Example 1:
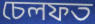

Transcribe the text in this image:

চেলফত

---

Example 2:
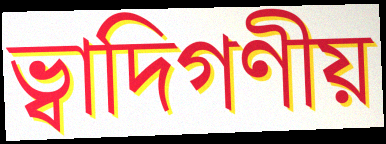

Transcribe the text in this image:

ভ্বাদিগণীয়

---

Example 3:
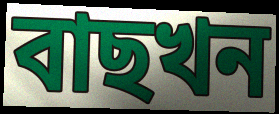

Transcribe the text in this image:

বাছখন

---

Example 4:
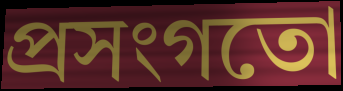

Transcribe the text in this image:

প্ৰসংগতো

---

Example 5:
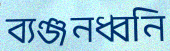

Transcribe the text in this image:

ব্যঞ্জনধ্বনি